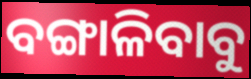
ବଙ୍ଗାଳିବାବୁ